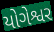
યોગેશ્વર